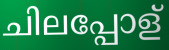
ചിലപ്പോള്